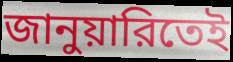
জানুয়ারিতেই